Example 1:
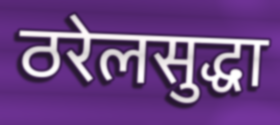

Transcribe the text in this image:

ठरेलसुद्धा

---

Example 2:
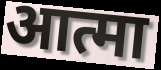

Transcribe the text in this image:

आत्मा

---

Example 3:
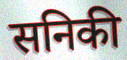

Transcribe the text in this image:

सनिकी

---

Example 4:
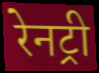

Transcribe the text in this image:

रेनट्री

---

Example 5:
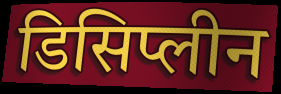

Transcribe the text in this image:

डिसिप्लीन